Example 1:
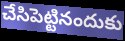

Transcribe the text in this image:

చేసిపెట్టినందుకు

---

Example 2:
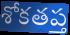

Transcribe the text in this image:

శోకతప్త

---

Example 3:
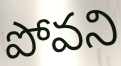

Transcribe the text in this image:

పోవని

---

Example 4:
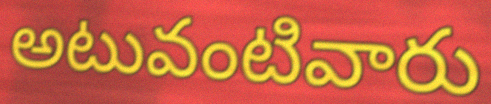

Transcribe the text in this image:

అటువంటివారు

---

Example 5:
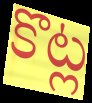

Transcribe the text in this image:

కొట్ల